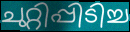
ചുറ്റിപ്പിടിച്ച